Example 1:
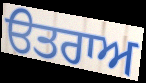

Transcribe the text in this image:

ੳਤਰਾਅ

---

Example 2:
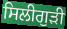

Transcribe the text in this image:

ਸਿਲੀਗੁੜੀ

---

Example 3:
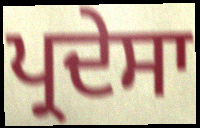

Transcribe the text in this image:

ਪ੍ਰਦੇਸਾ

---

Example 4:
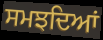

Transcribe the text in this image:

ਸਮਝਦਿਆਂ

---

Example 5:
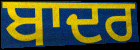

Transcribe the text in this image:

ਬਾਦਰ